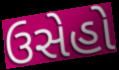
ઉસેહો